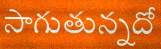
సాగుతున్నదో